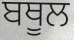
ਬਥੂਲ